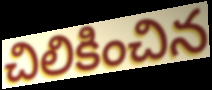
చిలికించిన